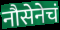
नौसेनेचं